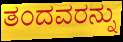
ತಂದವರನ್ನು